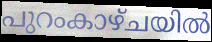
പുറംകാഴ്ചയിൽ